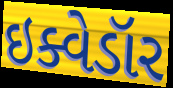
ઇક્વેડૉર